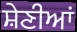
ਸ਼ੇਣੀਆਂ